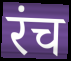
रंच